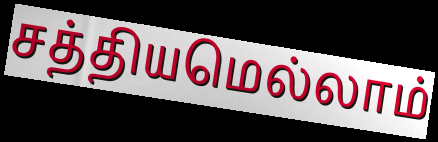
சத்தியமெல்லாம்